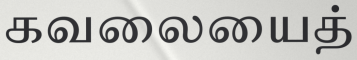
கவலையைத்